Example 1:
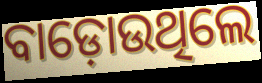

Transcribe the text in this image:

ବାଡ଼ୋଉଥିଲେ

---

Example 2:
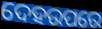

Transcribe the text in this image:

ଦେହଉପରେ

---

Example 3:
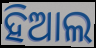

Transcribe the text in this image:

ହିଆଲ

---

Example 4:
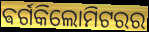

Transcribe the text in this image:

ଵର୍ଗକିଲୋମିଟରର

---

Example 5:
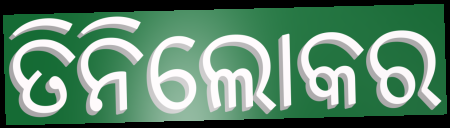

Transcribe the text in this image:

ତିନିଲୋକର